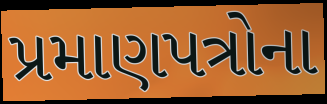
પ્રમાણપત્રોના